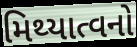
મિથ્યાત્વનો